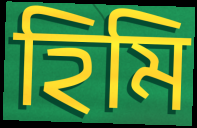
হিমি